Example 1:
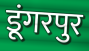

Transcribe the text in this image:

डूंगरपुर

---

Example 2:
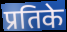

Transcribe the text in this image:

प्रतिके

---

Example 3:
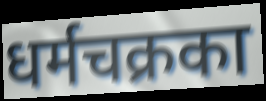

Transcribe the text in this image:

धर्मचक्रका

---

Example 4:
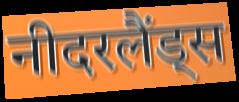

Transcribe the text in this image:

नीदरलैंड्स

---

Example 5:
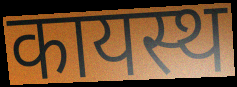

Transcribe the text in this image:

कायस्थ